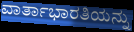
ವಾರ್ತಾಭಾರತಿಯನ್ನು